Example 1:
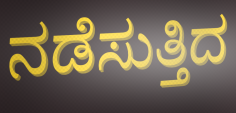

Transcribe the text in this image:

ನಡೆಸುತ್ತಿದ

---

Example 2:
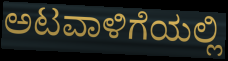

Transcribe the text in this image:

ಅಟವಾಳಿಗೆಯಲ್ಲಿ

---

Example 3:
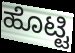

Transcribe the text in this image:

ಹೊಟ್ಟಿ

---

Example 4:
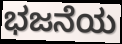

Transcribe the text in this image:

ಭಜನೆಯ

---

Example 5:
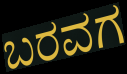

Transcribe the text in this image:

ಬರವಗ